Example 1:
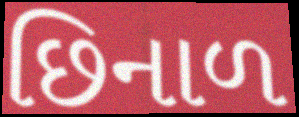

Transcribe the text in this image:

છિનાળ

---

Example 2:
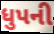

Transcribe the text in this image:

ધુપની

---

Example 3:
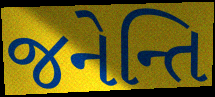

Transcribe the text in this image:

જનેન્તિ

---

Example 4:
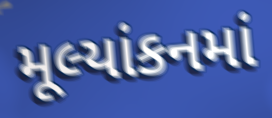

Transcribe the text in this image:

મૂલ્યાંકનમાં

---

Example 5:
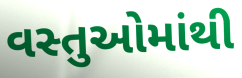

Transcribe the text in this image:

વસ્તુઓમાંથી